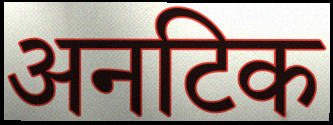
अनटिक